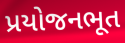
પ્રયોજનભૂત